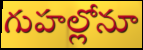
గుహల్లోనూ